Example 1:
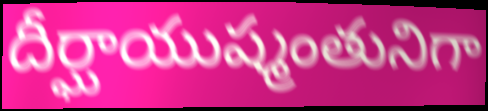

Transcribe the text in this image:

దీర్ఘాయుష్మంతునిగా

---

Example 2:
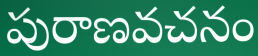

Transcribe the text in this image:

పురాణవచనం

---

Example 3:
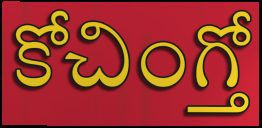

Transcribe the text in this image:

కోచింగ్తో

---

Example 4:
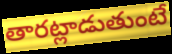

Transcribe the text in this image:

తారట్లాడుతుంటే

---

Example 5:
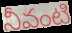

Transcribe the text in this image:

నీవంటి